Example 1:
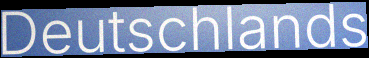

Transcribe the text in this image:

Deutschlands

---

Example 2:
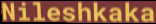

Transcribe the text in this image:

Nileshkaka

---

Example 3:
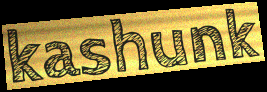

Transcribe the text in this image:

kashunk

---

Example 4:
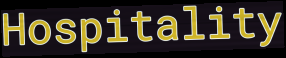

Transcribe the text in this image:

Hospitality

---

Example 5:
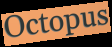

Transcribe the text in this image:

Octopus